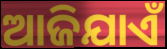
ଆଜିଯାଏଁ